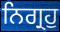
ਨਿਗ੍ਰਹੁ